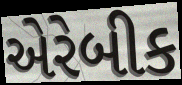
એરેબીક